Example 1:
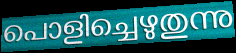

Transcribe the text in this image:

പൊളിച്ചെഴുതുന്നു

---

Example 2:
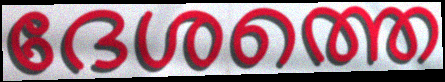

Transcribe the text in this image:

ദേശത്തെ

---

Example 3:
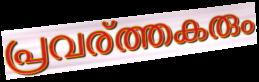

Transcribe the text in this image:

പ്രവര്ത്തകരും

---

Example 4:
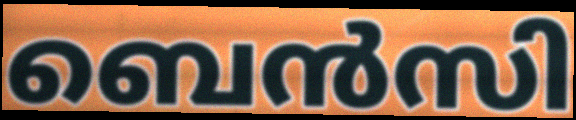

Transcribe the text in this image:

ബെൻസി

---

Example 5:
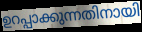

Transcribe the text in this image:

ഉറപ്പാക്കുന്നതിനായി